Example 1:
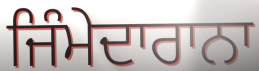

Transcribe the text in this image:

ਜਿੰਮੇਦਾਰਾਨਾ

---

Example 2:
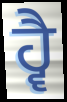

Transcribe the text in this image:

ਹ੍ਵੈ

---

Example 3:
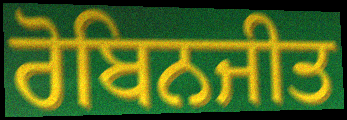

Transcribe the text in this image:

ਰੋਬਿਨਜੀਤ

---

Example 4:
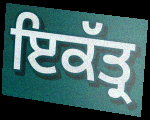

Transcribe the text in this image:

ਇਕੱਤ੍ਰ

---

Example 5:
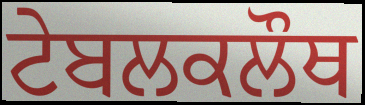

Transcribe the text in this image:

ਟੇਬਲਕਲੌਥ